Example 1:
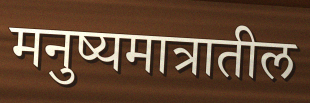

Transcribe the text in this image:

मनुष्यमात्रातील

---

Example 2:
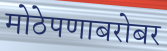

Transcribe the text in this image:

मोठेपणाबरोबर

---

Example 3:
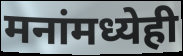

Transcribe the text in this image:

मनांमध्येही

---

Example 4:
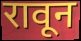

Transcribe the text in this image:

रावून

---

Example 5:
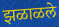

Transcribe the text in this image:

झळाळले